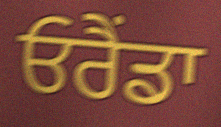
ਓਰੈਂਡਾ